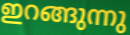
ഇറങ്ങുന്നു